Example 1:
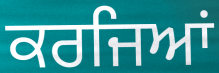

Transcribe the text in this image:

ਕਰਜਿਆਂ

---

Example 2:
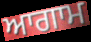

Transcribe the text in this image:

ਆਗਾਮ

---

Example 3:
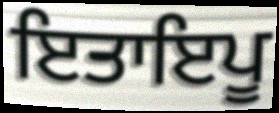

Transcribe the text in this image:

ਇਤਾਇਪੂ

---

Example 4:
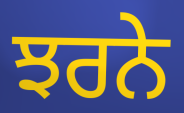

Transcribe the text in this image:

ਝਰਨੇ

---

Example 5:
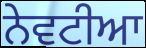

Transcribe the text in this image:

ਨੇਵਟੀਆ